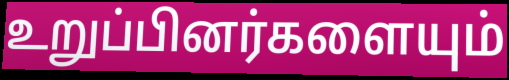
உறுப்பினர்களையும்